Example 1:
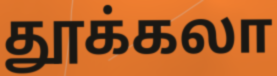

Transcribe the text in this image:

தூக்கலா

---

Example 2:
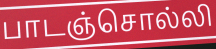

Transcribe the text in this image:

பாடஞ்சொல்லி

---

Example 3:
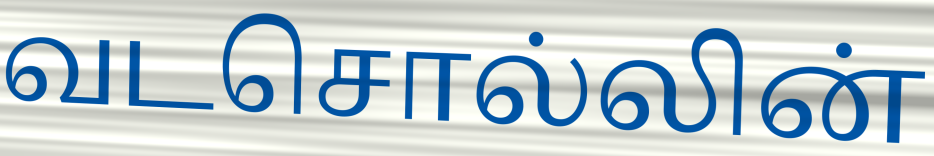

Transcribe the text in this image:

வடசொல்லின்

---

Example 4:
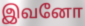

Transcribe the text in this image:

இவனோ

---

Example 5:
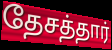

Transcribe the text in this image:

தேசத்தார்